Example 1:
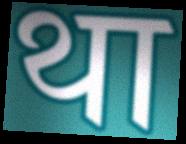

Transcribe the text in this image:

था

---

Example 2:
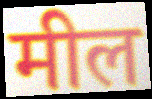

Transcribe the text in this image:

मील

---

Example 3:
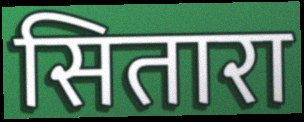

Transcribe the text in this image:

सितारा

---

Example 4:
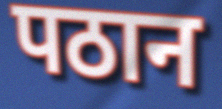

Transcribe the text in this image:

पठान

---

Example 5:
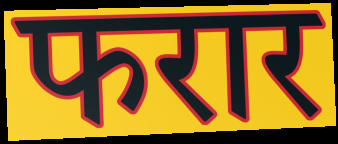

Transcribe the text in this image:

फरार